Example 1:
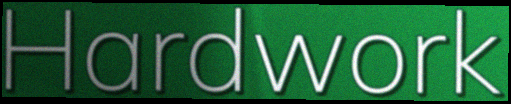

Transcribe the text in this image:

Hardwork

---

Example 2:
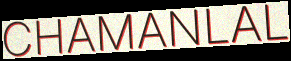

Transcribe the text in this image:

CHAMANLAL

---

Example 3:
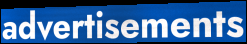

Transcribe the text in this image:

advertisements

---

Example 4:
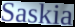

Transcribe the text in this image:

Saskia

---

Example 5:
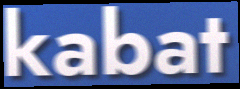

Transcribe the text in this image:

kabat